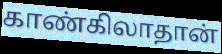
காண்கிலாதான்